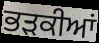
ਭੜਕੀਆਂ